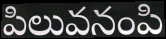
పిలువనంపి